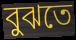
বুঝতে